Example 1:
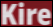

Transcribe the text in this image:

Kire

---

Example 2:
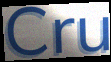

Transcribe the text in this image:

Cru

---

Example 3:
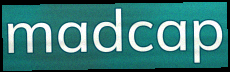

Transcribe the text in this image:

madcap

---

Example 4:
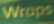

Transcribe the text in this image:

Wraps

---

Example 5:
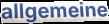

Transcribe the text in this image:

allgemeine